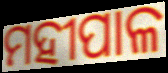
ମହୀପାଳ